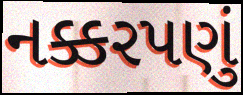
નક્કરપણું